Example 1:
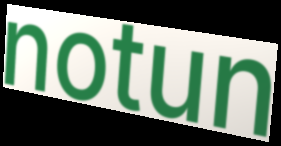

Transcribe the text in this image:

notun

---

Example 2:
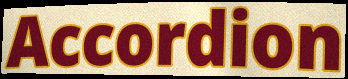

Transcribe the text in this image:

Accordion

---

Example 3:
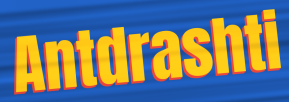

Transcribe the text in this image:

Antdrashti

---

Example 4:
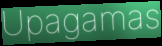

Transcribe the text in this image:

Upagamas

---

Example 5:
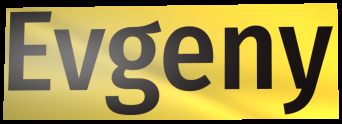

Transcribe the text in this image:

Evgeny